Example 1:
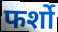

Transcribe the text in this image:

फर्शो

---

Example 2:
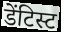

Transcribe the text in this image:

डेंटिस्ट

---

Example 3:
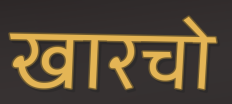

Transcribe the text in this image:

खारचो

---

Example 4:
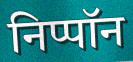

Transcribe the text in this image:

निप्पॉन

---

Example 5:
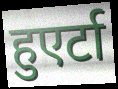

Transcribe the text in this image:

हुएर्टा